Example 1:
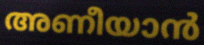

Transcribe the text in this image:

അണീയാൻ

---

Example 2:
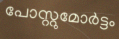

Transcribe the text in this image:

പോസ്റ്റുമോർട്ടം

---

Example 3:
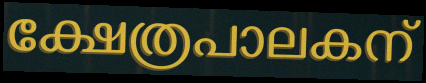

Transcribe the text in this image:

ക്ഷേത്രപാലകന്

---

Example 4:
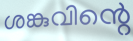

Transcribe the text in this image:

ശങ്കുവിന്റെ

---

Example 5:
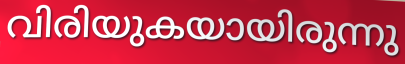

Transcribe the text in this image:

വിരിയുകയായിരുന്നു